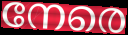
നേരെ